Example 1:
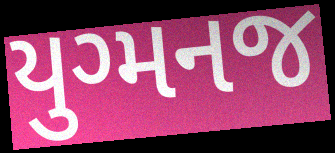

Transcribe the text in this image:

યુગ્મનજ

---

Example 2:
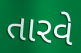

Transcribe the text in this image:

તારવે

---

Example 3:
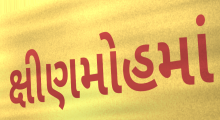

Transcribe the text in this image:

ક્ષીણમોહમાં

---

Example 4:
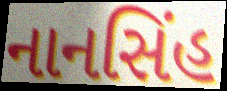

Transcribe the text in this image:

નાનસિંહ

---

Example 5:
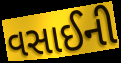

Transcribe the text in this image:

વસાઈની